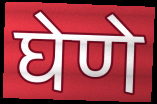
घेणे